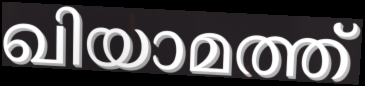
ഖിയാമത്ത്